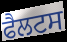
ਫੈਲਟਸ